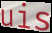
uis